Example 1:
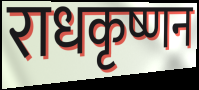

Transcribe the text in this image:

राधकृष्णन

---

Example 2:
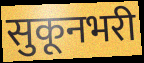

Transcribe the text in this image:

सुकूनभरी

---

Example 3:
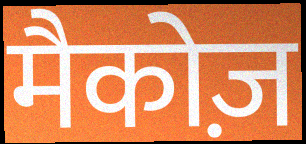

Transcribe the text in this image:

मैकोज़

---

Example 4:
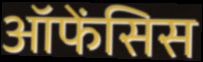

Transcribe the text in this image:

ऑफेंसिस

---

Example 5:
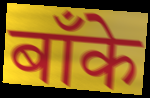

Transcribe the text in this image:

बाँके